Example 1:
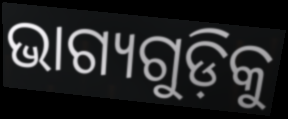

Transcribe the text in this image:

ଭାଗ୍ୟଗୁଡ଼ିକୁ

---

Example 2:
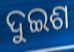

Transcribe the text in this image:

ଦୁଇଶ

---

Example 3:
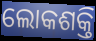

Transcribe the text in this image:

ଲୋକଶକ୍ତି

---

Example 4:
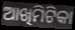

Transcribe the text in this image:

ଆଖିମିଟିକା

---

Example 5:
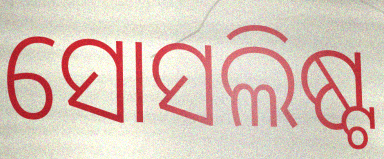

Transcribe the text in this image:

ସୋସଲିଷ୍ଟ